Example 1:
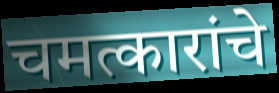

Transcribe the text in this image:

चमत्कारांचे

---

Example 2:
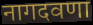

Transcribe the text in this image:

नागदवणा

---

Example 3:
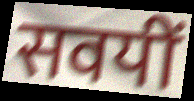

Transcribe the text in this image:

सवयीं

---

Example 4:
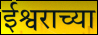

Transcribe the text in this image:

ईश्वराच्या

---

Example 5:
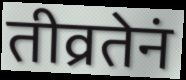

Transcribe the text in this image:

तीव्रतेनं